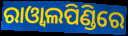
ରାଓ୍ଵାଲପିଣ୍ଡିରେ